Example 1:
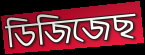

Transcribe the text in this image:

ডিজিজেছ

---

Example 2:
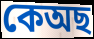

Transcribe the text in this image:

কেঅছ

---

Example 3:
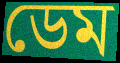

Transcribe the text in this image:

ডেম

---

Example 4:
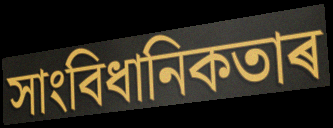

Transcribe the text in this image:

সাংবিধানিকতাৰ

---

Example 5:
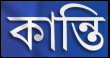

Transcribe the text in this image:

কান্তি